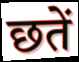
छतें